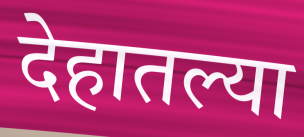
देहातल्या